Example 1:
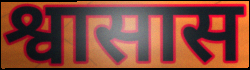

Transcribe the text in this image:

श्वासास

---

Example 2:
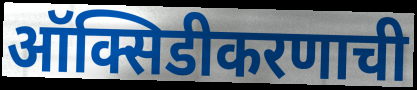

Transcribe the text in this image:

ऑक्सिडीकरणाची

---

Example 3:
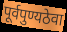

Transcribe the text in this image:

पूर्वपुण्यठेवा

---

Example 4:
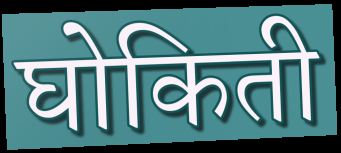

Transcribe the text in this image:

घोकिती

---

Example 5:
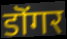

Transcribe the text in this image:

डॊंगर